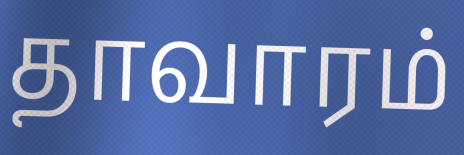
தாவாரம்